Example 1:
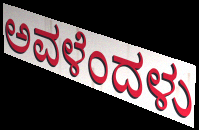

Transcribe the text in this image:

ಅವಳೆಂದಳು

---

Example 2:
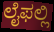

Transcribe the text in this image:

ಲೈಫಲ್ಲಿ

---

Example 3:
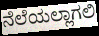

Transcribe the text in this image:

ನೆಲೆಯಲ್ಲಾಗಲಿ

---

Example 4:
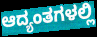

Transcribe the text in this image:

ಆದ್ಯಂತಗಳಲ್ಲಿ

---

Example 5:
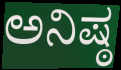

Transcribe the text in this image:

ಅನಿಷ್ಠ